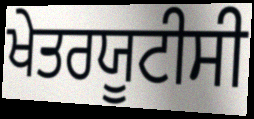
ਖੇਤਰਯੂਟੀਸੀ